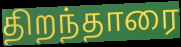
திறந்தாரை